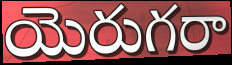
యెరుగరా